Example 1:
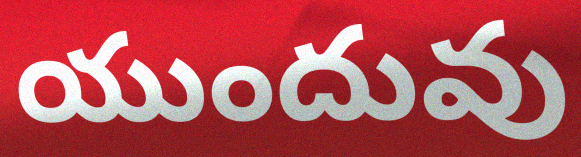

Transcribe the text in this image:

యుందువు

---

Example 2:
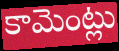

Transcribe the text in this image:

కామెంట్లు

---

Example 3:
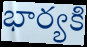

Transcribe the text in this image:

భార్యకి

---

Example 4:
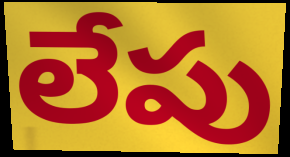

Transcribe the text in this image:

లేపు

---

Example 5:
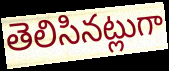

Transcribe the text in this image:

తెలిసినట్లుగా